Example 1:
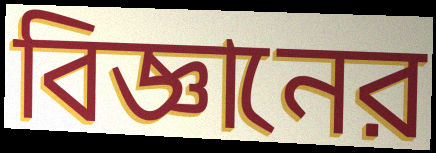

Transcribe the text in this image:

বিজ্ঞানের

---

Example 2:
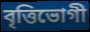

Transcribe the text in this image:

বৃত্তিভোগী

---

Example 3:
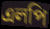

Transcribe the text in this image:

এলপি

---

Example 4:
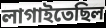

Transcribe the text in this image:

লাগাইতেছিল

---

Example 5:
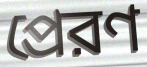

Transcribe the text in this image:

প্রেরণ